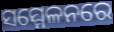
ସମ୍ମେଳନରେ